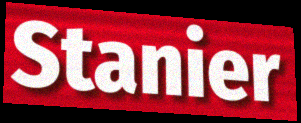
Stanier